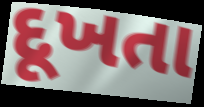
દૂખતા